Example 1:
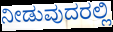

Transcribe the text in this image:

ನೀಡುವುದರಲ್ಲಿ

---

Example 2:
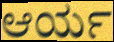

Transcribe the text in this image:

ಆರ್ಯ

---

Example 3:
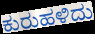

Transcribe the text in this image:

ಕುರುಹಳಿದು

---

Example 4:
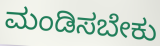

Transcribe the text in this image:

ಮಂಡಿಸಬೇಕು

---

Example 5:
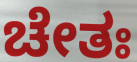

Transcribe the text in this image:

ಚೇತಃ